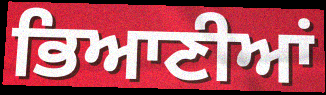
ਭਿਆਣੀਆਂ